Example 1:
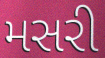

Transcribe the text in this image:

મસરી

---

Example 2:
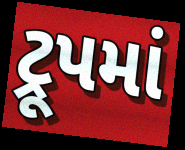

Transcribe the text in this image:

ટ્રૂપમાં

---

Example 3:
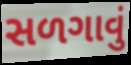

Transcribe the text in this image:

સળગાવું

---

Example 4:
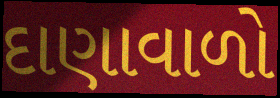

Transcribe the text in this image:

દાણાવાળો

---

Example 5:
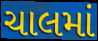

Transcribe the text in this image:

ચાલમાં